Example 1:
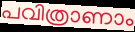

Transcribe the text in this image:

പവിത്രാണാം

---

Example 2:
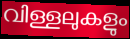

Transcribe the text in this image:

വിള്ളലുകളും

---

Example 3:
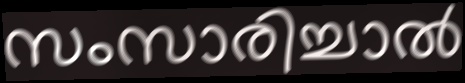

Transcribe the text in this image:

സംസാരിച്ചാൽ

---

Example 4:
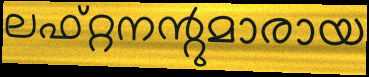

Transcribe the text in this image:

ലഫ്റ്റനന്റുമാരായ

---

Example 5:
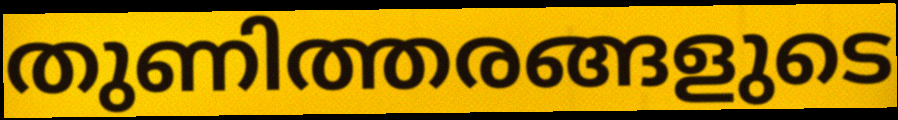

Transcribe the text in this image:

തുണിത്തരങ്ങളുടെ